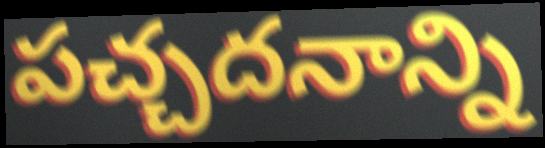
పచ్చదనాన్ని